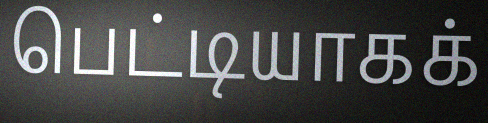
பெட்டியாகக்